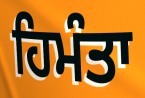
ਹਿਮੰਤਾ